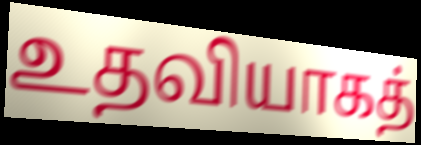
உதவியாகத்